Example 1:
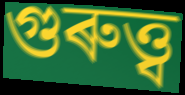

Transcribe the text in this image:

গুৰুত্ত্ব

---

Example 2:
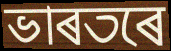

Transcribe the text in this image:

ভাৰতৰে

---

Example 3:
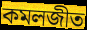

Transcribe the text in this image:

কমলজীত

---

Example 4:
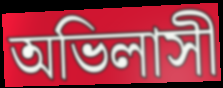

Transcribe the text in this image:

অভিলাসী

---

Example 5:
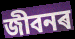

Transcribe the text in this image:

জীবনৰ